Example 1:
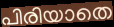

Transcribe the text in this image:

പിരിയാതെ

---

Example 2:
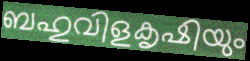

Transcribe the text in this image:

ബഹുവിളകൃഷിയും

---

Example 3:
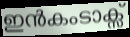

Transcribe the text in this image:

ഇൻകംടാക്സ്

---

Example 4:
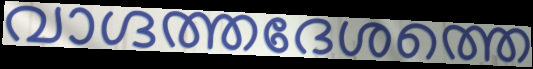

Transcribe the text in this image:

വാഗ്ദത്തദേശത്തെ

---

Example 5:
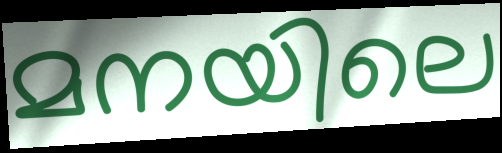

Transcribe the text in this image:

മനയിലെ